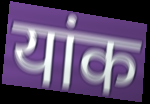
यांक